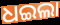
ଧଇଲା